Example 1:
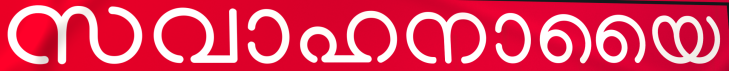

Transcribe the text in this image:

സവാഹനായൈ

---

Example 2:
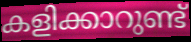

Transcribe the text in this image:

കളിക്കാറുണ്ട്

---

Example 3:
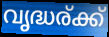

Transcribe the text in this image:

വൃദ്ധര്ക്ക്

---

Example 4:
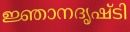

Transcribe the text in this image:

ജ്ഞാനദൃഷ്ടി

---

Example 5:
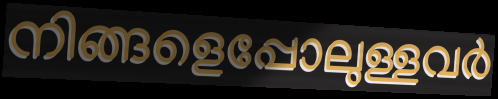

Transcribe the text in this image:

നിങ്ങളെപ്പോലുള്ളവർ